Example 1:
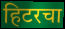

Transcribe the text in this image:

हिटरचा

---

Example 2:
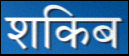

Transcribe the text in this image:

शकिब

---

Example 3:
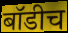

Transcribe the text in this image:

बॉडीच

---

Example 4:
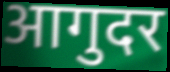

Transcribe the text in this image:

आगुदर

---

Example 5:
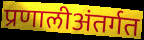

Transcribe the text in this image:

प्रणालीअंतर्गत